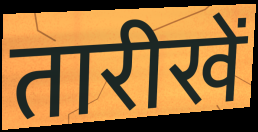
तारीखें